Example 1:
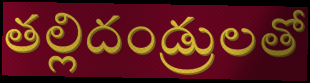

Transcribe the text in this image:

తల్లిదండ్రులతో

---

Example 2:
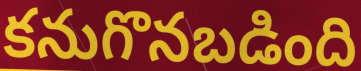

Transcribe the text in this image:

కనుగొనబడింది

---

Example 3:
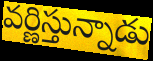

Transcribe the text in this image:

వర్ణిస్తున్నాడు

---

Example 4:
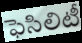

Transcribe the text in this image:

ఫెసిలిటీ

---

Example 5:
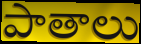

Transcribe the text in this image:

పాతాలు